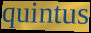
quintus